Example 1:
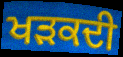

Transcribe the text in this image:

ਖੜਕਦੀ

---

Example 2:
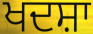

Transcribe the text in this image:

ਖਦਸ਼ਾ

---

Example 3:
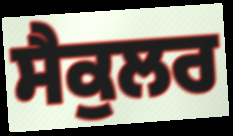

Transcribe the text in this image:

ਸੈਕੁਲਰ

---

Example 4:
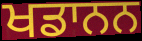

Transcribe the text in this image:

ਖਡਾਨਨ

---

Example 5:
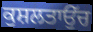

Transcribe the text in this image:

ਕੁਸ਼ਲਤਾਉੱਚ